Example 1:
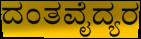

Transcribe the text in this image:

ದಂತವೈದ್ಯರ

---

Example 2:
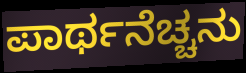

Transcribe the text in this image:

ಪಾರ್ಥನೆಚ್ಚನು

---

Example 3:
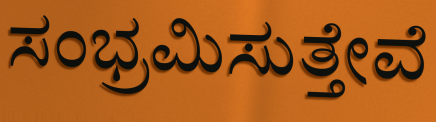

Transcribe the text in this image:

ಸಂಭ್ರಮಿಸುತ್ತೇವೆ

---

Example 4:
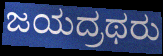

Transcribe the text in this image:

ಜಯದ್ರಥರು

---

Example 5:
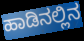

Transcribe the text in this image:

ಹಾಡಿನಲ್ಲಿನ